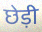
छेड़ी